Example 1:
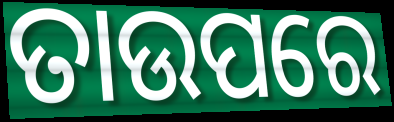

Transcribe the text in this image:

ତାଉପରେ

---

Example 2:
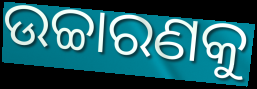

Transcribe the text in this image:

ଉଚ୍ଚାରଣକୁ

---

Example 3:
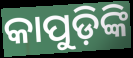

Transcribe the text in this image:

କାପୁଡ଼ିଙ୍କି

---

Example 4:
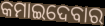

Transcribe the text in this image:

କମାଇଦେବାର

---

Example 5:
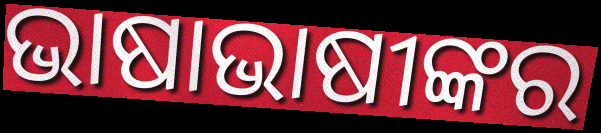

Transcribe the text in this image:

ଭାଷାଭାଷୀଙ୍କର